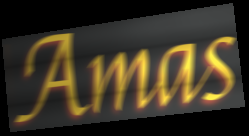
Amas